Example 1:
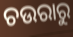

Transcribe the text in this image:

ଚଉରାରୁ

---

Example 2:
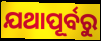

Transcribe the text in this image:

ଯଥାପୂର୍ବରୁ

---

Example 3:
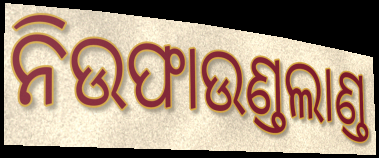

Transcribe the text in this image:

ନିଉଫାଉଣ୍ଡଲାଣ୍ଡ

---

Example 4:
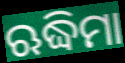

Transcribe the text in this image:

ଋଦ୍ଧିମା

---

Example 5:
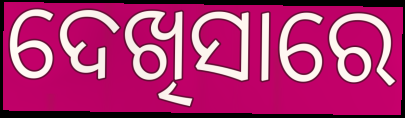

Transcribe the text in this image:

ଦେଖିସାରେ